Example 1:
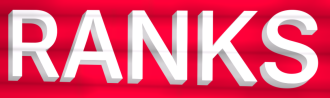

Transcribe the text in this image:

RANKS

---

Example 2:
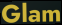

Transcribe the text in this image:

Glam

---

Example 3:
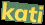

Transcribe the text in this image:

kati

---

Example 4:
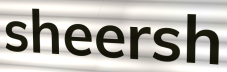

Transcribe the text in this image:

sheersh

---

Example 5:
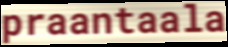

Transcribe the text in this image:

praantaala